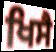
ਖਿਸੈ